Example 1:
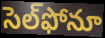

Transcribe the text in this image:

సెల్‌ఫోనూ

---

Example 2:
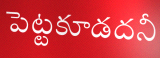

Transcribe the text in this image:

పెట్టకూడదనీ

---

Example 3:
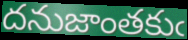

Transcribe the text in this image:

దనుజాంతకుఁ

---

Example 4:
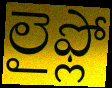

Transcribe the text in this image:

లైఫ్లో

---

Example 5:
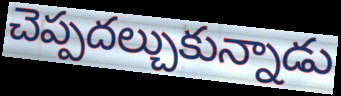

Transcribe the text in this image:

చెప్పదల్చుకున్నాడు